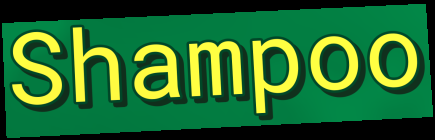
Shampoo